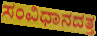
ಸಂವಿಧಾನದತ್ತ